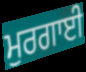
ਮੁਰਗਾਈ